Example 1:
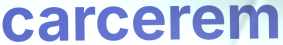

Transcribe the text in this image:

carcerem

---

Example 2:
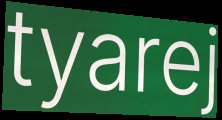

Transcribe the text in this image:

tyarej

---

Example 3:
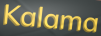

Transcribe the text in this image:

Kalama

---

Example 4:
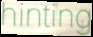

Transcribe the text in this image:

hinting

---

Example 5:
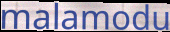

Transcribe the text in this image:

malamodu